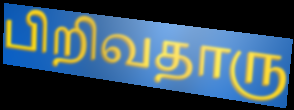
பிறிவதாரு